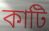
কাটি